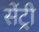
सेंट्री